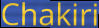
Chakiri